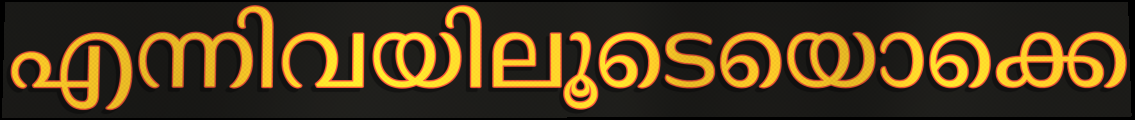
എന്നിവയിലൂടെയൊക്കെ